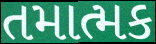
તમાત્મક